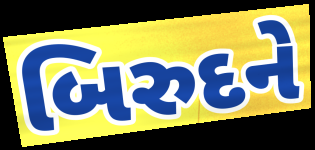
બિરુદને